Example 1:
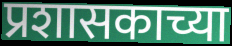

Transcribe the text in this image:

प्रशासकाच्या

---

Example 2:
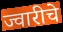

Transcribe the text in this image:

ज्वारीचे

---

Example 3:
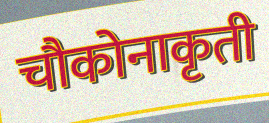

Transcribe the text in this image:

चौकोनाकृती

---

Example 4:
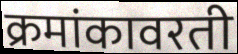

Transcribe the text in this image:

क्रमांकावरती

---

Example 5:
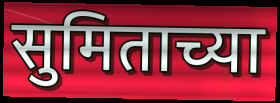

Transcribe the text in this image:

सुमिताच्या